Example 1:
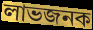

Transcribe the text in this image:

লাভজনক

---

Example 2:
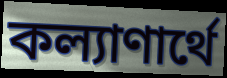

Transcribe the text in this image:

কল্যাণার্থে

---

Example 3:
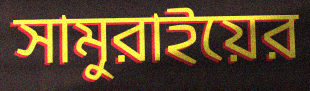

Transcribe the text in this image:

সামুরাইয়ের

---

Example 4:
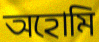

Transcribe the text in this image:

অহোমি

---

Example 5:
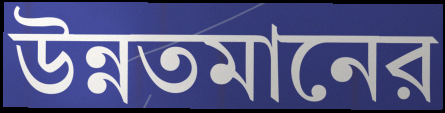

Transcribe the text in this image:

উন্নতমানের